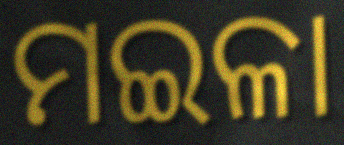
ମଇଳା